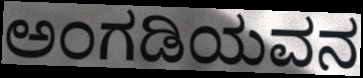
ಅಂಗಡಿಯವನ